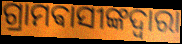
ଗ୍ରାମଵାସୀଙ୍କଦ୍ୱାରା